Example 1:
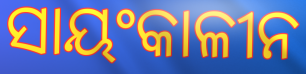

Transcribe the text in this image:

ସାୟଂକାଳୀନ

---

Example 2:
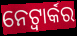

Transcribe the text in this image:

ନେଟ୍ୱାର୍କର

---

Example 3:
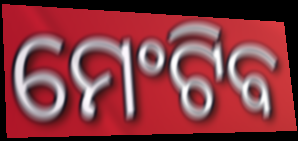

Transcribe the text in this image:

ମେଂଟିବ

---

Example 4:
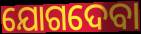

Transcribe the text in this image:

ଯୋଗଦେବା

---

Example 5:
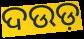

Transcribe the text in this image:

ଦଉଡ଼